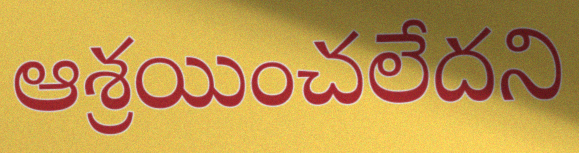
ఆశ్రయించలేదని